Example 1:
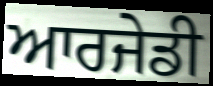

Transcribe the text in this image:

ਆਰਜੇਡੀ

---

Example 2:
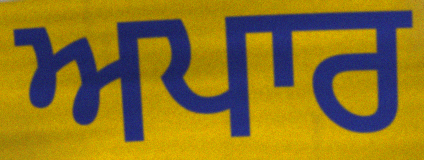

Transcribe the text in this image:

ਅਪਾਰ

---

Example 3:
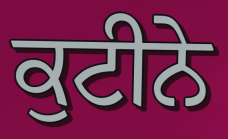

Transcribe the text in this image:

ਕੁਟੀਨੇ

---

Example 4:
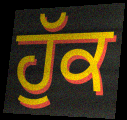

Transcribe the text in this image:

ਹੁੱਕ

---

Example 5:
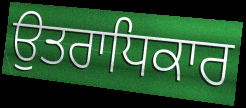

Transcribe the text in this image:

ਉਤਰਾਧਿਕਾਰ